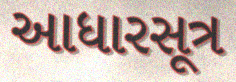
આધારસૂત્ર